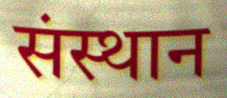
संस्थान